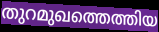
തുറമുഖത്തെത്തിയ